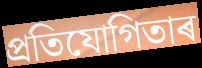
প্ৰতিযোগিতাৰ